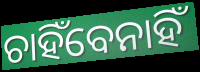
ଚାହିଁବେନାହିଁ